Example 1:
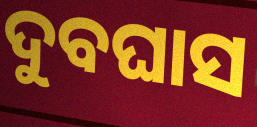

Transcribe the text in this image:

ଦୁବଘାସ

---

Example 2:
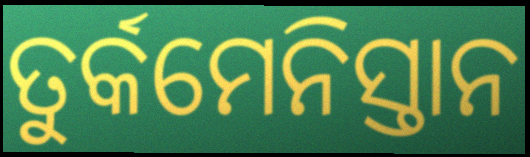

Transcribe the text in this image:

ତୁର୍କମେନିସ୍ତାନ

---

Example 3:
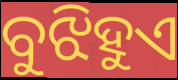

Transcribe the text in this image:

ବୁଝିହୁଏ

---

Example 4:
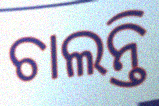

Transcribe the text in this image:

ଚାଲନ୍ତି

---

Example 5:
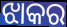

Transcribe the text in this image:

ଝାକର